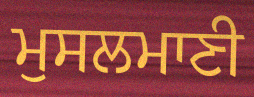
ਮੁਸਲਮਾਣੀ